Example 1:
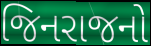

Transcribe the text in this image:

જિનરાજનો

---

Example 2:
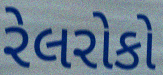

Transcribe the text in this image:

રેલરોકો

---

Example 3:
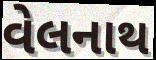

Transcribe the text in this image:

વેલનાથ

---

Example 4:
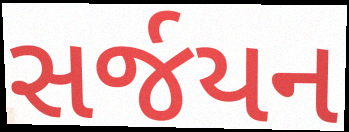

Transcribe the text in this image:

સર્જયન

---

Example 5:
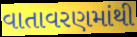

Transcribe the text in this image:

વાતાવરણમાંથી